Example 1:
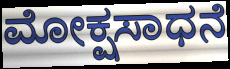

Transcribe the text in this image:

ಮೋಕ್ಷಸಾಧನೆ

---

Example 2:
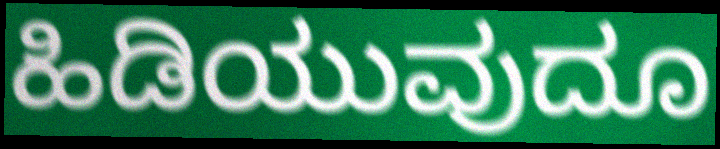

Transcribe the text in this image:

ಹಿಡಿಯುವುದೂ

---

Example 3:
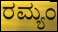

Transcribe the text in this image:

ರಮ್ಯಂ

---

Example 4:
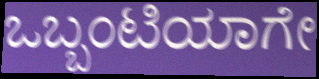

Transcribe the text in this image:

ಒಬ್ಬಂಟಿಯಾಗೇ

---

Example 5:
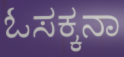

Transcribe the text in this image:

ಓಸಕ್ಕನಾ